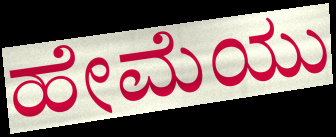
ಹೇಮೆಯು